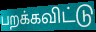
பறக்கவிட்டு